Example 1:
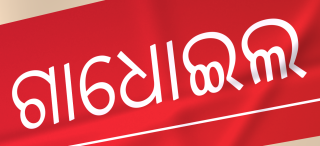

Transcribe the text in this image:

ଗାଧୋଇଲ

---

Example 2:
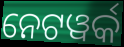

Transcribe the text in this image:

ନେଟୱର୍କ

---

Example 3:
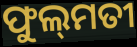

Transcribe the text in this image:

ଫୁଲ୍‍ମତୀ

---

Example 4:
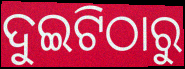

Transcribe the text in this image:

ଦୁଇଟିଠାରୁ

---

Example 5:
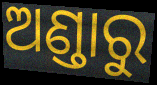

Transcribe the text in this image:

ଅଣ୍ଡାରୁ